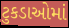
ટુકડાઓમાં